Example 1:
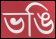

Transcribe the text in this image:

ভঙি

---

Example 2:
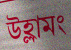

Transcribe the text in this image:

উহ্লামং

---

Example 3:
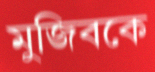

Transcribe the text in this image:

মুজিবকে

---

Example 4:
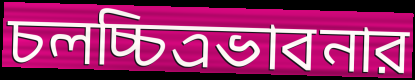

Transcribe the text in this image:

চলচ্চিত্রভাবনার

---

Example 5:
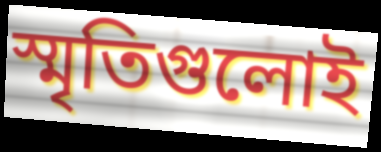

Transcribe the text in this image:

স্মৃতিগুলোই